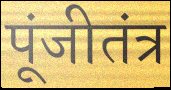
पूंजीतंत्र